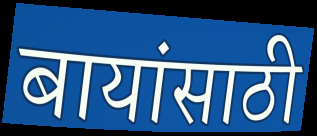
बायांसाठी